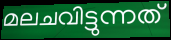
മലചവിട്ടുന്നത്